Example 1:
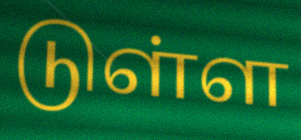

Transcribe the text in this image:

டுள்ள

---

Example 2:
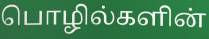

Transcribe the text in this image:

பொழில்களின்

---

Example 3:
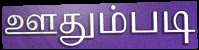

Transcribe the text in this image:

ஊதும்படி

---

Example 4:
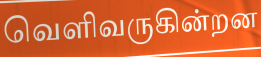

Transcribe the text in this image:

வெளிவருகின்றன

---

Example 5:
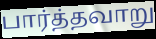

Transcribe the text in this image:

பார்த்தவாறு